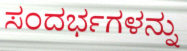
ಸಂದರ್ಭಗಳನ್ನು